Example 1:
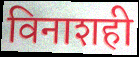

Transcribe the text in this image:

विनाशही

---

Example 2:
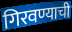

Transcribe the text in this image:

गिरवण्याची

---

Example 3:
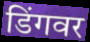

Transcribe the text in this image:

डिंगवर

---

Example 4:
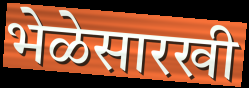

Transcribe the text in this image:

भेळेसारखी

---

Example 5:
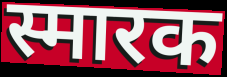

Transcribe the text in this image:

स्मारक